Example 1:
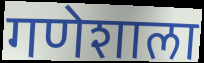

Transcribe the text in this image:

गणेशाला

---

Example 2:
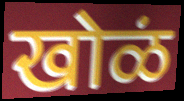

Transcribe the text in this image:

खोळं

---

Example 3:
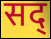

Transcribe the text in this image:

सद्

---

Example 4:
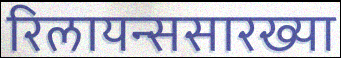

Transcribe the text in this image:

रिलायन्ससारख्या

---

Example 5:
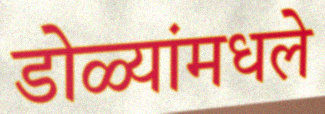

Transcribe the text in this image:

डोळ्यांमधले